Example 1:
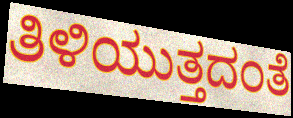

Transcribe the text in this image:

ತಿಳಿಯುತ್ತದಂತೆ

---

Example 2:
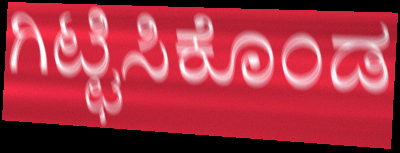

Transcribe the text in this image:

ಗಿಟ್ಟಿಸಿಕೊಂಡ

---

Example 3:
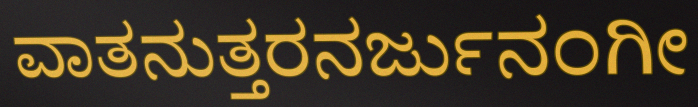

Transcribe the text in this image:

ವಾತನುತ್ತರನರ್ಜುನಂಗೀ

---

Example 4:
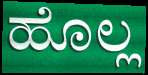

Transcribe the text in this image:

ಹೊಲ್ಲ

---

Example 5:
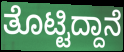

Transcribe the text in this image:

ತೊಟ್ಟಿದ್ದಾನೆ